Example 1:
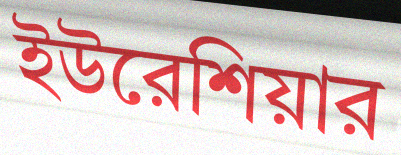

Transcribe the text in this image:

ইউরেশিয়ার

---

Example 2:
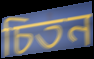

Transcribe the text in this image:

চিতন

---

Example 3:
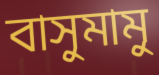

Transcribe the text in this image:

বাসুমামু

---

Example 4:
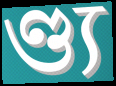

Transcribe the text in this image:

ণ্ড্য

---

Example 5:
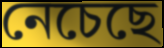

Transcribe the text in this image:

নেচেছে